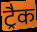
ट्रैक